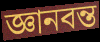
জ্ঞানবন্ত